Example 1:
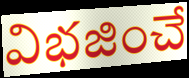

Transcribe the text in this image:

విభజించే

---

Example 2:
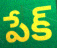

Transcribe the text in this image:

పేక్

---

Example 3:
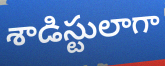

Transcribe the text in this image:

శాడిస్టులాగా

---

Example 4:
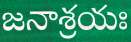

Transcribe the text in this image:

జనాశ్రయః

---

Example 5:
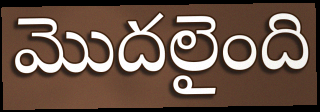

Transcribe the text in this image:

మొదలైంది